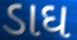
ડાઘ